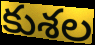
కుశల